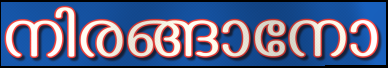
നിരങ്ങാനോ